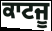
ਕਾਟਜੂ